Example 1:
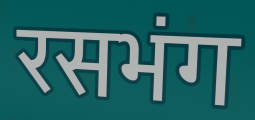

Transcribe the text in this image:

रसभंग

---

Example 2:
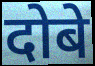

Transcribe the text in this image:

दोबे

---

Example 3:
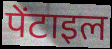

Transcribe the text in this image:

पेंटाइल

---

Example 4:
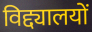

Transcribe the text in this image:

विद्द्यालयों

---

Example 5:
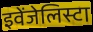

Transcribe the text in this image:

इवेंजेलिस्टा